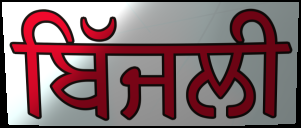
ਬਿੱਜਲੀ